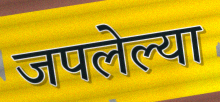
जपलेल्या